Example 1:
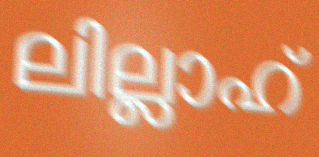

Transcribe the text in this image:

ലില്ലാഹ്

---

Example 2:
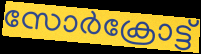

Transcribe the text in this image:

സോർക്രോട്ട്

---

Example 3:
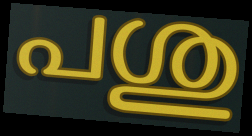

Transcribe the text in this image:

പശു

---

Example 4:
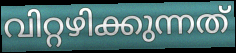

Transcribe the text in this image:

വിറ്റഴിക്കുന്നത്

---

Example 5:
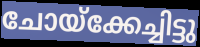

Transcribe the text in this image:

ചോയ്ക്കേച്ചിട്ടു